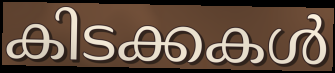
കിടക്കകൾ